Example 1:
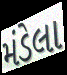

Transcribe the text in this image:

મંડેલા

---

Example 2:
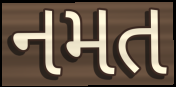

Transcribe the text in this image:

નમત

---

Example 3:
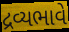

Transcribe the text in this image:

દ્રવ્યભાવે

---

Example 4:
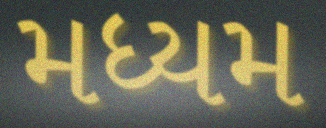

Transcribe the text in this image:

મધ્યમ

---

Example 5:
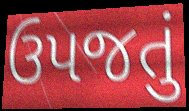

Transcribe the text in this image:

ઉપજતું